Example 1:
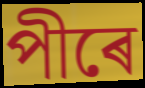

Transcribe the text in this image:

পীৰে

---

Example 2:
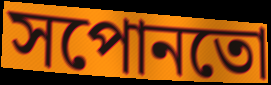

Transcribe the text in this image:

সপোনতো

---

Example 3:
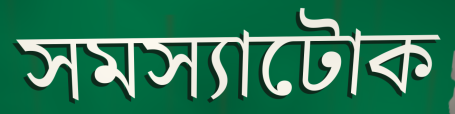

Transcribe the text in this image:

সমস্যাটোক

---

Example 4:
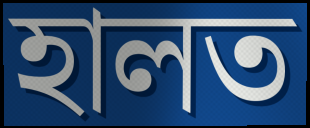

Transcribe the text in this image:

হালত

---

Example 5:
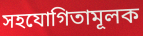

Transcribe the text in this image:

সহযোগিতামূলক